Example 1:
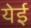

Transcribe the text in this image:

येई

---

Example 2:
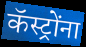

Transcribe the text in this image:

कॅस्ट्रोंना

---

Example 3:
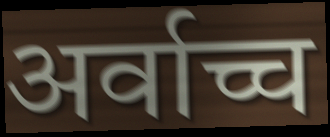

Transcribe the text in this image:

अर्वाच्च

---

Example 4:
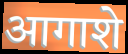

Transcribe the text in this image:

आगाशे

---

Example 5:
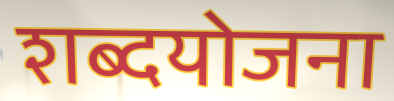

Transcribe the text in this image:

शब्दयोजना